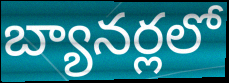
బ్యానర్లలో